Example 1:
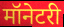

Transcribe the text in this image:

मॉनेटरी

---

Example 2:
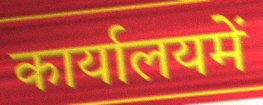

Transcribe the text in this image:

कार्यालयमें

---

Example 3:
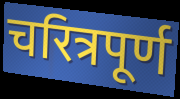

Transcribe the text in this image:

चरित्रपूर्ण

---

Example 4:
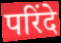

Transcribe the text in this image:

परिंदे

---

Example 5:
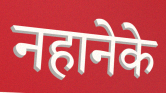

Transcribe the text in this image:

नहानेके